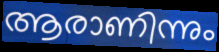
ആരാണിന്നും